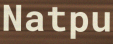
Natpu